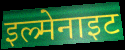
इल्मेनाइट